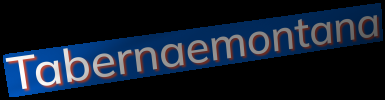
Tabernaemontana